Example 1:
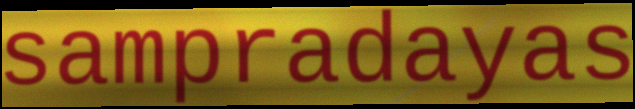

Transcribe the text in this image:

sampradayas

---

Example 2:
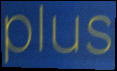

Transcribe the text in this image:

plus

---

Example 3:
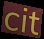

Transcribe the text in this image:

cit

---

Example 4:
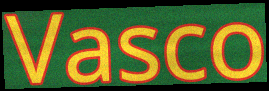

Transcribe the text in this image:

Vasco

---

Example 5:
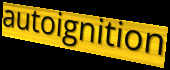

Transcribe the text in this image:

autoignition